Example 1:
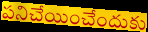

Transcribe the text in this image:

పనిచేయించేందుకు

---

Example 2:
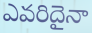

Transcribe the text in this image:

ఎవరిదైనా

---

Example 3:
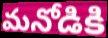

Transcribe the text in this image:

మనోడికి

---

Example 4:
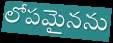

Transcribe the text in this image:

లోపమైనను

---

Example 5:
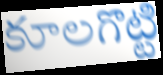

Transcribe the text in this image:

కూలగొట్టి